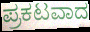
ಪ್ರಕಟವಾದ